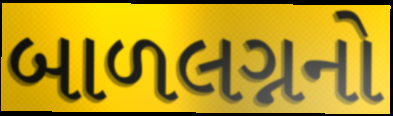
બાળલગ્નનો